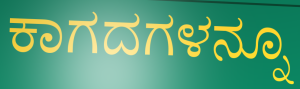
ಕಾಗದಗಳನ್ನೂ